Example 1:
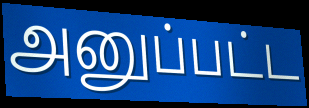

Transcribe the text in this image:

அனுப்பட்ட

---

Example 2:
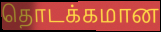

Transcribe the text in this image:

தொடக்கமான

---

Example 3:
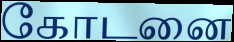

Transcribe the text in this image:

கோடனை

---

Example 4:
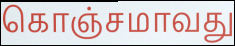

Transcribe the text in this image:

கொஞ்சமாவது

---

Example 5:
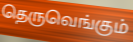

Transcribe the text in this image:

தெருவெங்கும்